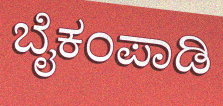
ಬೈಕಂಪಾಡಿ